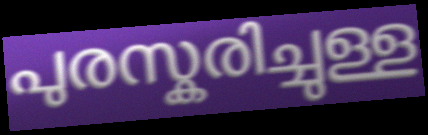
പുരസ്കരിച്ചുള്ള